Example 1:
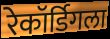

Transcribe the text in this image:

रेकॉर्डिगला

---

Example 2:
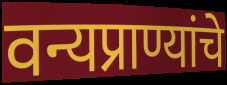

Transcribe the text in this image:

वन्यप्राण्यांचे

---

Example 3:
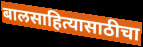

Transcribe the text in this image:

बालसाहित्यासाठीचा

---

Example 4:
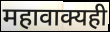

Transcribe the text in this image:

महावाक्यही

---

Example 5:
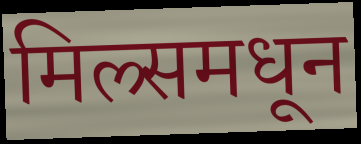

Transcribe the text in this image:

मिल्समधून